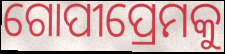
ଗୋପୀପ୍ରେମକୁ